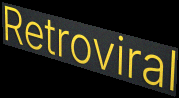
Retroviral